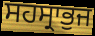
ਸਹਸ੍ਰਾਭੁਜ